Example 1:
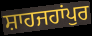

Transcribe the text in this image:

ਸ਼ਾਹਜਹਾਂਪੁਰ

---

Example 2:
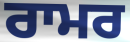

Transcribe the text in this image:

ਰਾਮਰ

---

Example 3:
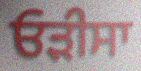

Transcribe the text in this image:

ਓੜੀਸਾ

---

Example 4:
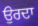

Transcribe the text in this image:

ਉਰਦਾ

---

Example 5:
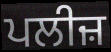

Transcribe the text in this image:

ਪਲੀਜ਼